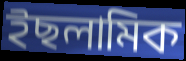
ইছলামিক